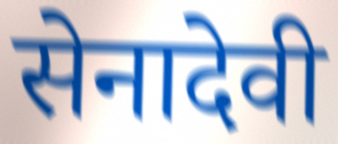
सेनादेवी